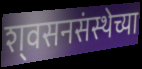
श्वसनसंस्थेच्या